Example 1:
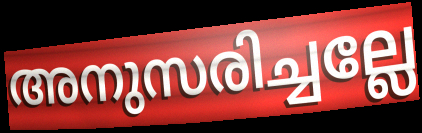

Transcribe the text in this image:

അനുസരിച്ചല്ലേ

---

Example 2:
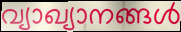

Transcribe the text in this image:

വ്യാഖ്യാനങ്ങൾ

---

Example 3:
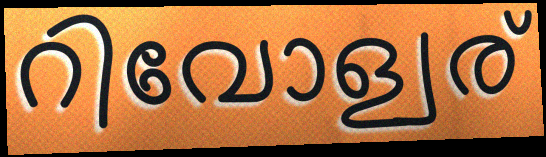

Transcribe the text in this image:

റിവോള്വര്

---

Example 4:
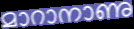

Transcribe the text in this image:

മാറാനാണു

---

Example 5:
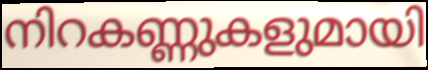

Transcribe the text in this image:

നിറകണ്ണുകളുമായി